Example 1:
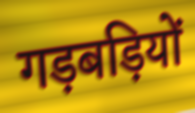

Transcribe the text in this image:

गड़बड़ियों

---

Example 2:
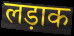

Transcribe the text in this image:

लड़ाक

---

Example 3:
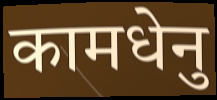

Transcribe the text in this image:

कामधेनु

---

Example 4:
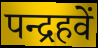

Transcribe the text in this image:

पन्द्रहवें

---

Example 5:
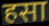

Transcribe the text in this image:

हसा